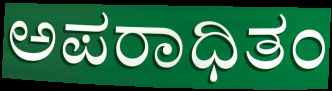
ಅಪರಾಧಿತಂ